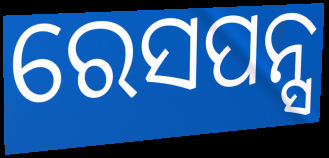
ରେସପନ୍ସ